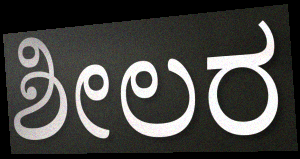
ಶೀಲರ